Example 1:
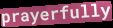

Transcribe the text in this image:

prayerfully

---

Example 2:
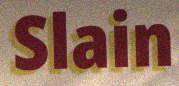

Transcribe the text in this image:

Slain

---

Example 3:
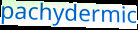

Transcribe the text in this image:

pachydermic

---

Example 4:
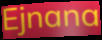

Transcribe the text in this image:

Ejnana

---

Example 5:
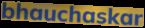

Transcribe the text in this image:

bhauchaskar